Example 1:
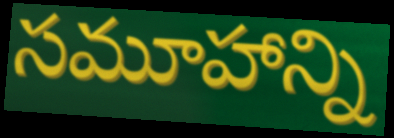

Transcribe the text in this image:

సమూహాన్ని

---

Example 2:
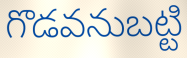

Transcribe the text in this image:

గొడవనుబట్టి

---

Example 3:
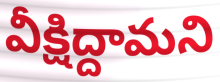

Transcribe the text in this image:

వీక్షిద్దామని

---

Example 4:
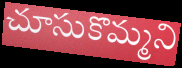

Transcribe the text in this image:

చూసుకొమ్మని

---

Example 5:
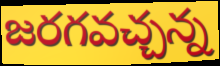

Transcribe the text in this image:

జరగవచ్చన్న